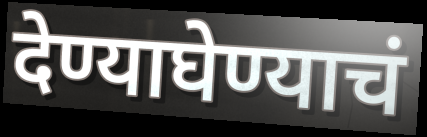
देण्याघेण्याचं